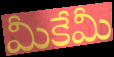
మీకేమీ